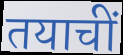
तयाचीं